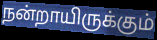
நன்றாயிருக்கும்